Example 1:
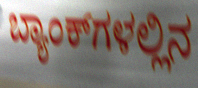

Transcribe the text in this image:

ಬ್ಯಾಂಕ್‌ಗಳಲ್ಲಿನ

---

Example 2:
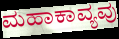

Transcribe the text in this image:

ಮಹಾಕಾವ್ಯವು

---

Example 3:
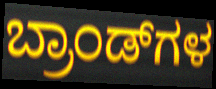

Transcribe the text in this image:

ಬ್ರಾಂಡ್‌ಗಳ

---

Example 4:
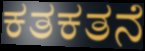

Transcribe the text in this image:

ಕತಕತನೆ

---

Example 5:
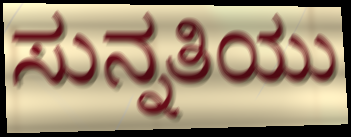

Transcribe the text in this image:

ಸುನ್ನತಿಯು